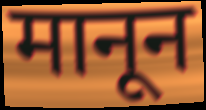
मानून